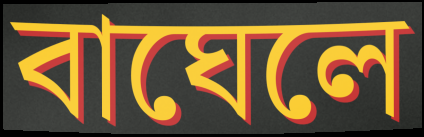
বাঘেলে